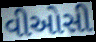
વીઓસી